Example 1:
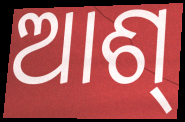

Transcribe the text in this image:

ଆଶ୍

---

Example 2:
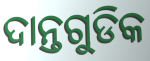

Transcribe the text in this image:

ଦାନ୍ତଗୁଡିକ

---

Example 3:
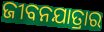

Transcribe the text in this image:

ଜୀବନଯାତ୍ରାର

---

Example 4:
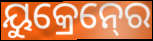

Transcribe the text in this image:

ୟୁକ୍ରେନ୍‍ରେ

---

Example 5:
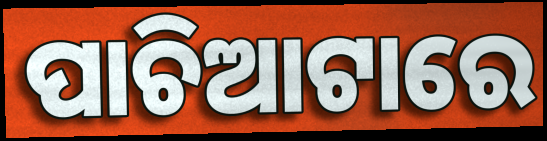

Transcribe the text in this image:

ପାଚିଆଟାରେ